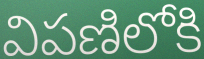
విపణిలోకి